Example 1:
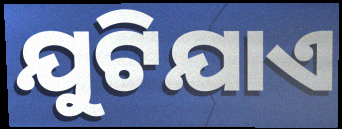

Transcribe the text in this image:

ଯୁଟିଯାଏ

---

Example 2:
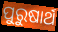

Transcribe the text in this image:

ପୁରୁଷାର୍ଥ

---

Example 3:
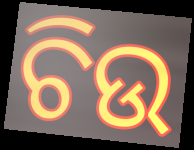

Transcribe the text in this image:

ଚିଉ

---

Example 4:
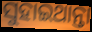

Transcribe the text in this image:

ସୁହାଇଥାନ୍ତା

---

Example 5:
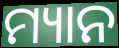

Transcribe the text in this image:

ମ୍ୟାନ